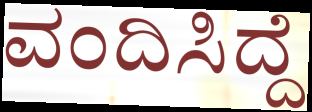
ವಂದಿಸಿದ್ದೆ